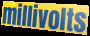
millivolts